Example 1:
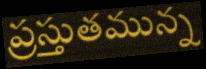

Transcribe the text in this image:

ప్రస్తుతమున్న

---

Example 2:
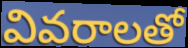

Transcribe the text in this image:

వివరాలతో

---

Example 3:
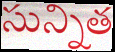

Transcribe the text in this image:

సున్నిత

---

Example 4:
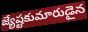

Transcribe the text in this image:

జ్యేష్టకుమారుడైన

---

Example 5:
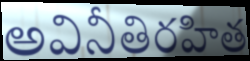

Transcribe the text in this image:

అవినీతిరహిత